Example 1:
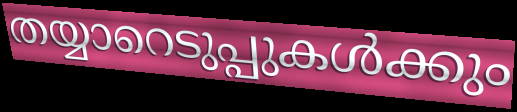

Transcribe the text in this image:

തയ്യാറെടുപ്പുകൾക്കും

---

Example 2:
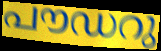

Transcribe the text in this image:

പൗഡറു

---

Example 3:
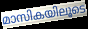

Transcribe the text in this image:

മാസികയിലൂടെ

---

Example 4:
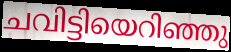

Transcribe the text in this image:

ചവിട്ടിയെറിഞ്ഞു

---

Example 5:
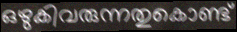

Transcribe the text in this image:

ഒഴുകിവരുന്നതുകൊണ്ട്